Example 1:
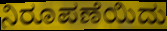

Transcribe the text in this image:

ನಿರೂಪಣೆಯಿದು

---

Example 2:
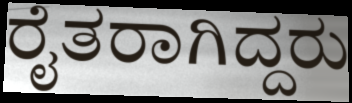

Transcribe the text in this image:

ರೈತರಾಗಿದ್ದರು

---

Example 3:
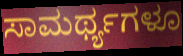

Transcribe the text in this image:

ಸಾಮರ್ಥ್ಯಗಳೂ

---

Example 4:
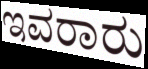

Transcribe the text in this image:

ಇವರಾರು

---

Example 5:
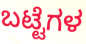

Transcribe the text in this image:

ಬಟ್ಟೆಗಳ